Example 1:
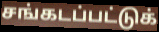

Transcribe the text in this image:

சங்கடப்பட்டுக்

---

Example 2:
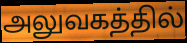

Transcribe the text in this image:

அலுவகத்தில்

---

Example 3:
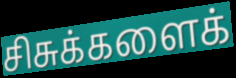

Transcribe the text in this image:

சிசுக்களைக்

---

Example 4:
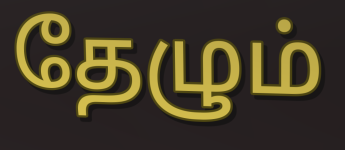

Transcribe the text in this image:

தேழும்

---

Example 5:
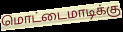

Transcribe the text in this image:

மொட்டைமாடிக்கு